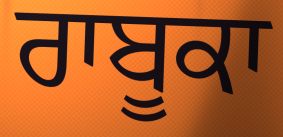
ਰਾਬੂਕਾ